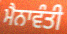
ਮੈਨਾਵੰਤੀ